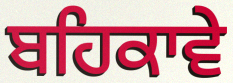
ਬਹਿਕਾਵੇ